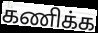
கணிக்க